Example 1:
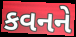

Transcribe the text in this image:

કવનને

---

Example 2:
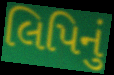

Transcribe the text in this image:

લિપિનું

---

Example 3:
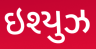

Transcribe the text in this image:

ઇશ્યુઝ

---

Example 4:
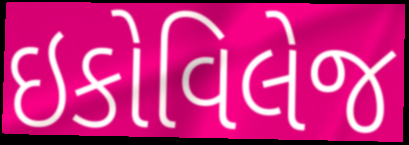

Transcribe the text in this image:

ઇકોવિલેજ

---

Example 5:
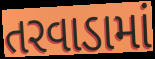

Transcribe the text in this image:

તરવાડામાં